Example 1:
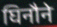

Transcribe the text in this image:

घिनौने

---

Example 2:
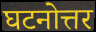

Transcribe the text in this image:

घटनोत्तर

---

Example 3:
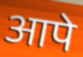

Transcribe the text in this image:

आपे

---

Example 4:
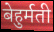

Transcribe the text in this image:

बेहुर्मती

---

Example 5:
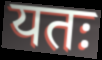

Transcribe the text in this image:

यतः